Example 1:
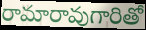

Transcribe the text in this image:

రామారావుగారితో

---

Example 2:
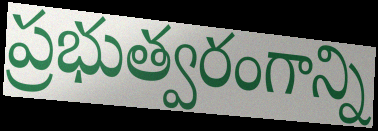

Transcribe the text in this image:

ప్రభుత్వరంగాన్ని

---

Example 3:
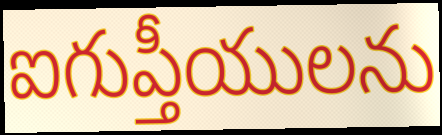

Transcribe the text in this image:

ఐగుప్తీయులను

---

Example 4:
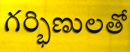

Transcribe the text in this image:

గర్భిణులతో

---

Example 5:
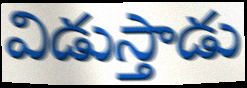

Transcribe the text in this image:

విడుస్తాడు